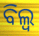
ବିଲ୍ଵ